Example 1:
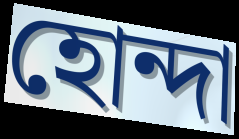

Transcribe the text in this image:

হোন্দা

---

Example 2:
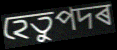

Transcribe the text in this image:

হেতুপদৰ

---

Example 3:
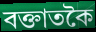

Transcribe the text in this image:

বক্তাতকৈ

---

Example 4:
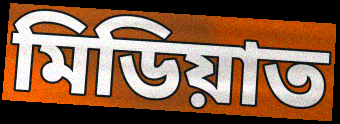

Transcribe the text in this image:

মিডিয়াত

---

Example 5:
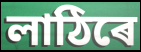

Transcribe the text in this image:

লাঠিৰে